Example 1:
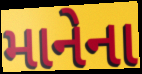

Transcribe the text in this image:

માનેના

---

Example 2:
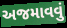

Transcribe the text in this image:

અજમાવવું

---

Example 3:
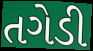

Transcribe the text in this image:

તગેડી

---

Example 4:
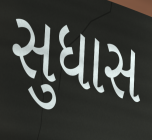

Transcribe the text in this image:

સુધાસ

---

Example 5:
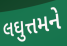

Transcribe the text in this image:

લઘુત્તમને